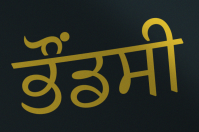
ਭੌਂਡਸੀ